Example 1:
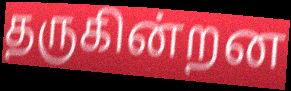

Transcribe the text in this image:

தருகின்றன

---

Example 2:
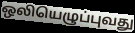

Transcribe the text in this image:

ஒலியெழுப்புவது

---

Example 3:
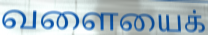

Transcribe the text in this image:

வளையைக்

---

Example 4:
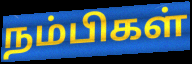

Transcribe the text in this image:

நம்பிகள்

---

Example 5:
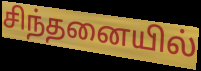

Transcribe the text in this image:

சிந்தனையில்